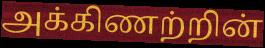
அக்கிணற்றின்